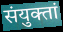
संयुक्तां